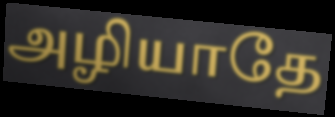
அழியாதே